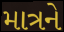
માત્રને